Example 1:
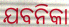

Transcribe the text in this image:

ଯବନିକା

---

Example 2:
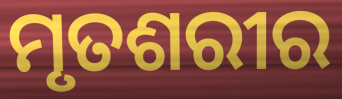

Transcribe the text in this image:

ମୃତଶରୀର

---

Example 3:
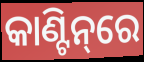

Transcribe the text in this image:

କାଣ୍ଟିନ୍‌ରେ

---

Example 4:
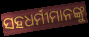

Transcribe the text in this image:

ସହଧର୍ମୀମାନଙ୍କୁ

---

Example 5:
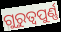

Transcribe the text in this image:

ଗୁରୁତ୍ୱପୁର୍ଣ୍ଣ